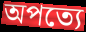
অপত্যে